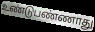
உண்டுபண்ணாது